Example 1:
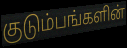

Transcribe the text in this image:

குடும்பங்களின்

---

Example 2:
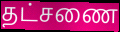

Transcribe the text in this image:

தட்சணை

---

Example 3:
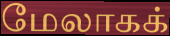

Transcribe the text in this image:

மேலாகக்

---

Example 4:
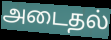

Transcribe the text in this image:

அடைதல்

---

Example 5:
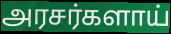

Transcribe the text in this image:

அரசர்களாய்